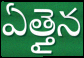
ఏత్తైన